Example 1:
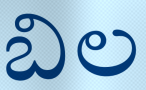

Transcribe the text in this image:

బిల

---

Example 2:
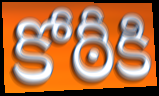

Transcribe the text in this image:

కోఠీకి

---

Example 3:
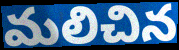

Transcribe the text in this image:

మలిచిన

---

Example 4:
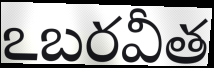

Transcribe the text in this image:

ఽబరవీత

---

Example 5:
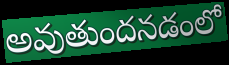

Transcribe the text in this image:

అవుతుందనడంలో